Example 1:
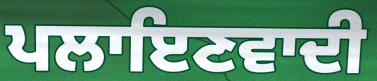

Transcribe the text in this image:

ਪਲਾਇਣਵਾਦੀ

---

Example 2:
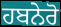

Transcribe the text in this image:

ਹਬਨੇਰੋ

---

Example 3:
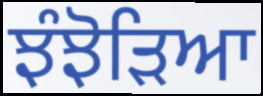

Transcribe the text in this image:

ਝੰਝੋੜਿਆ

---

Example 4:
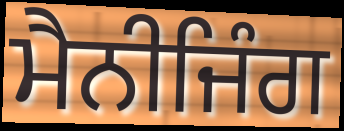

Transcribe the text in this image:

ਮੈਨੀਜਿੰਗ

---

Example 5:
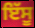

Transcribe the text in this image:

ਇੱਸੂ